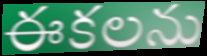
ఈకలను